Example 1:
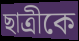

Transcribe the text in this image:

ছাত্রীকে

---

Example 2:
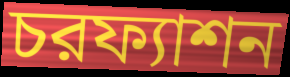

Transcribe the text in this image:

চরফ্যাশন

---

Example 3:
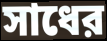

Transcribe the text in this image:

সাধের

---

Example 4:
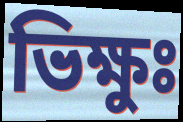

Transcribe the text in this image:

ভিক্ষুঃ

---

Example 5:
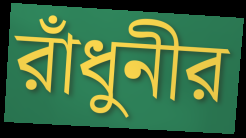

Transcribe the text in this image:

রাঁধুনীর